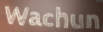
Wachun